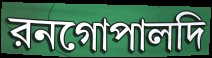
রনগোপালদি